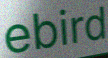
ebird